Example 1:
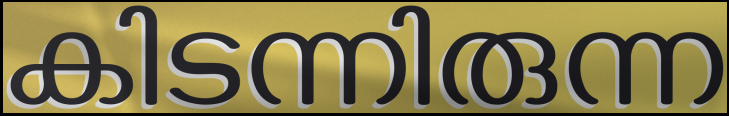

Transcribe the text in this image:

കിടന്നിരുന്ന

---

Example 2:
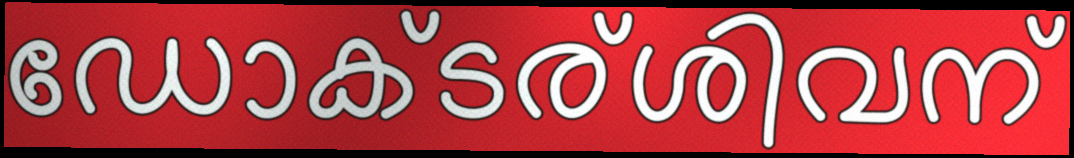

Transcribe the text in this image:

ഡോക്ടര്ശിവന്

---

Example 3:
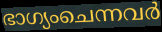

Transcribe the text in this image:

ഭാഗ്യംചെന്നവർ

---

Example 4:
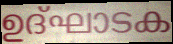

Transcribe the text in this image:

ഉദ്ഘാടക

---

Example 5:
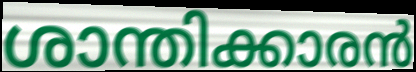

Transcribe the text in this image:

ശാന്തിക്കാരൻ